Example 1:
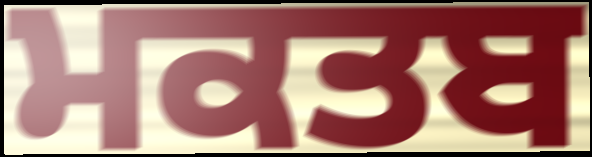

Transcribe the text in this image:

ਮਕਤਬ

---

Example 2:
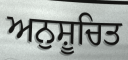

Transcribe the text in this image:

ਅਨੁਸ਼ੂਚਿਤ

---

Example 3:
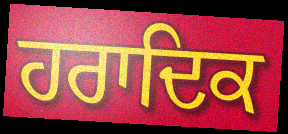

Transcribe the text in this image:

ਹਰਾਦਿਕ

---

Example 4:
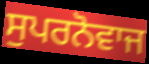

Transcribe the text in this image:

ਸੁਪਰਨੋਵਾਜ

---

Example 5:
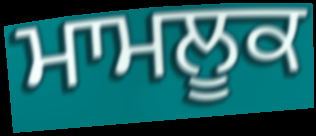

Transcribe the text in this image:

ਮਾਮਲੂਕ